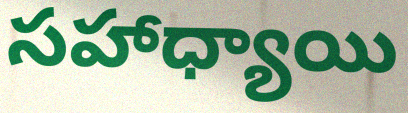
సహాధ్యాయి